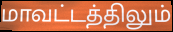
மாவட்டத்திலும்